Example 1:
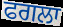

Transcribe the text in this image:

ਫਗਲਾ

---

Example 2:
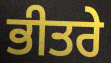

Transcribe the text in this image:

ਭੀਤਰੇ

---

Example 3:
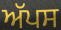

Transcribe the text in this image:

ਅੱਪਸ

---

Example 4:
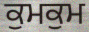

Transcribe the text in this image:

ਕੁਮਕੁਮ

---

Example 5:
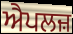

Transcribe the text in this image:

ਐਪਲਜ਼